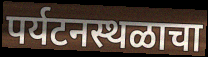
पर्यटनस्थळाचा